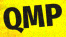
QMP